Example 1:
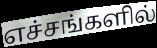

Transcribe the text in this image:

எச்சங்களில்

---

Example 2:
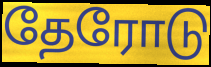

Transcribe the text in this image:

தேரோடு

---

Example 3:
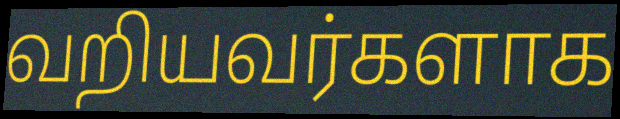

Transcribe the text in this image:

வறியவர்களாக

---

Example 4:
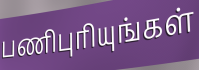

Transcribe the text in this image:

பணிபுரியுங்கள்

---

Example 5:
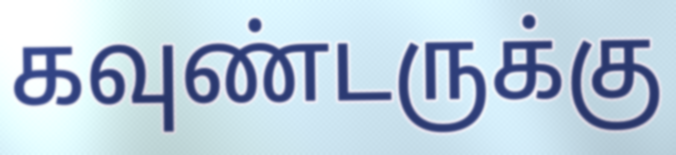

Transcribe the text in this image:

கவுண்டருக்கு